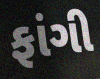
ફાંગી